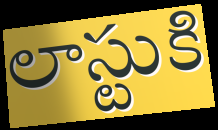
లాస్టుకి